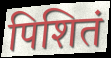
पिशितं